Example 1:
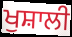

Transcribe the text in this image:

ਖੁਸ਼ਾਲੀ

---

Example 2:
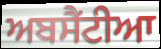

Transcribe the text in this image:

ਅਬਸੈਂਟੀਆ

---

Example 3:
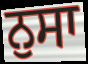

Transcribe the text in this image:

ਨੁਸਾ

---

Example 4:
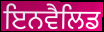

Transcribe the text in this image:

ਇਨਵੈਲਿਡ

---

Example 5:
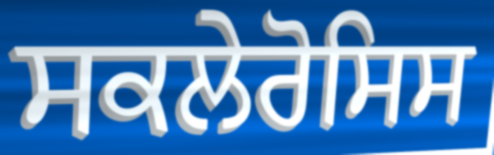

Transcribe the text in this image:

ਸਕਲੇਰੋਸਿਸ